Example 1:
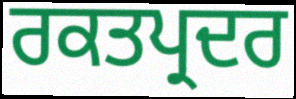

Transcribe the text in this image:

ਰਕਤਪ੍ਰਦਰ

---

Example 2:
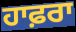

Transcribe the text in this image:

ਹਾਫ਼ਰਾ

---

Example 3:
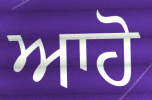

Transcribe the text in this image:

ਆਹੋ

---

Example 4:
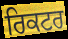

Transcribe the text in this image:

ਰਿਕਟਰ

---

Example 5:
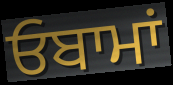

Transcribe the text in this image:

ਓਬਾਮਾਂ